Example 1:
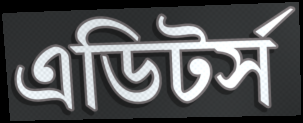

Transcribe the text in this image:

এডিটর্স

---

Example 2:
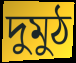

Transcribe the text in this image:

দুমুঠ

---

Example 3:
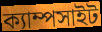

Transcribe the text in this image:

ক্যাম্পসাইট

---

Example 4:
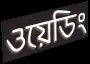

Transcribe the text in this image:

ওয়েডিং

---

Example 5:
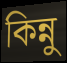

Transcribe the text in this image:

কিন্নু